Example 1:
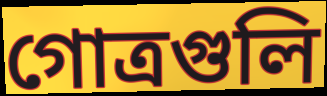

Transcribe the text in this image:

গোত্রগুলি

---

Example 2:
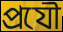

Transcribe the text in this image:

প্রযৌ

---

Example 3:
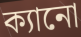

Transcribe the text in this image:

ক্যানো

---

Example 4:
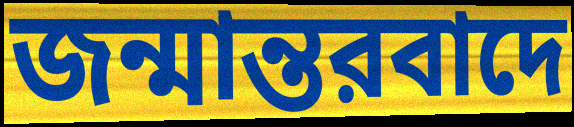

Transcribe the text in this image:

জন্মান্তরবাদে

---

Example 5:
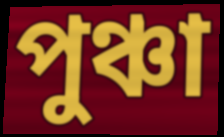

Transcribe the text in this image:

পুঞ্চা